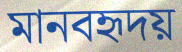
মানবহৃদয়